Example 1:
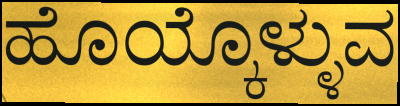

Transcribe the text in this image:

ಹೊಯ್ಕೊಳ್ಳುವ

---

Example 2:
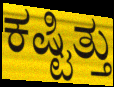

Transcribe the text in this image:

ಕಷ್ಟಿತ್ತು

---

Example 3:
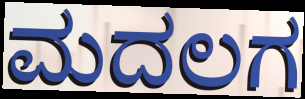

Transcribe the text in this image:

ಮದಲಗ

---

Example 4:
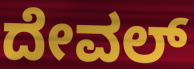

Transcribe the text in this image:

ದೇವಲ್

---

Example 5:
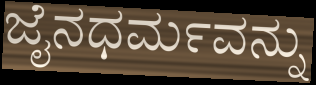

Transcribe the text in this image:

ಜೈನಧರ್ಮವನ್ನು